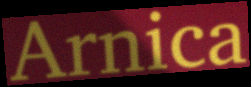
Arnica